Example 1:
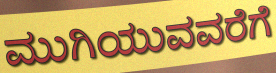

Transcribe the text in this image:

ಮುಗಿಯುವವರೆಗೆ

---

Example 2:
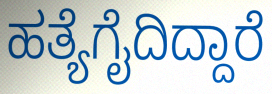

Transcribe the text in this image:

ಹತ್ಯೆಗೈದಿದ್ದಾರೆ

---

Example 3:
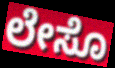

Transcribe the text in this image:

ಲೇಸೊ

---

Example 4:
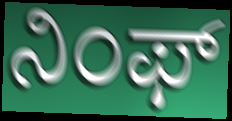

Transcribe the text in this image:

ನಿಂಫ್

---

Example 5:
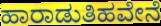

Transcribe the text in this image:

ಹಾರಾಡುತಿಹವೇನೆ